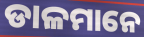
ଡାଳମାନେ